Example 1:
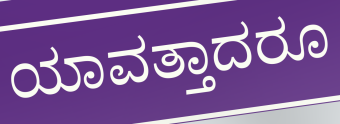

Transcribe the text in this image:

ಯಾವತ್ತಾದರೂ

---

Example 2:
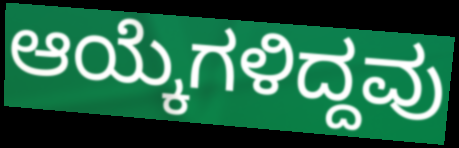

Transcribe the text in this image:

ಆಯ್ಕೆಗಳಿದ್ದವು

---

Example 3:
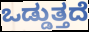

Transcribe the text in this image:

ಒಡ್ಡುತ್ತದೆ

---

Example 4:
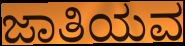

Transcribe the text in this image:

ಜಾತಿಯವ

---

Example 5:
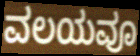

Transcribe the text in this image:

ವಲಯವೂ